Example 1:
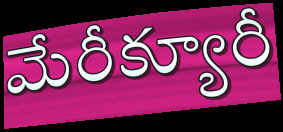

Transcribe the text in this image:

మేరీక్యూరీ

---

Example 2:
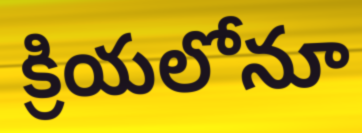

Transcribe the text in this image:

క్రియలోనూ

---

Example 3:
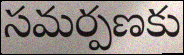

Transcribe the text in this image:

సమర్పణకు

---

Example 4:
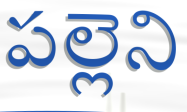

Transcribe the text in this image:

పల్లెని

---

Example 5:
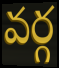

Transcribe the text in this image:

వర్గ